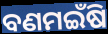
ବଣମଇଁଷି